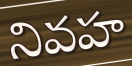
నివహ